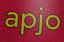
apjo